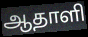
ஆதாளி